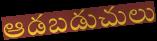
ఆడబడుచులు